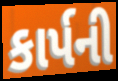
કાર્પની